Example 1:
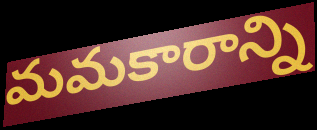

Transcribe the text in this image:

మమకారాన్ని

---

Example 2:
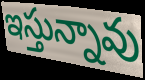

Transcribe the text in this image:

ఇస్తున్నావు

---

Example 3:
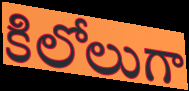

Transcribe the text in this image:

కిలోలుగా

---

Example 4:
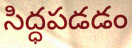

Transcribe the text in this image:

సిద్ధపడడం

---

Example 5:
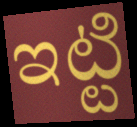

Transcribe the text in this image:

ఇట్టి